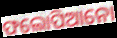
ଫଲୋପିଆନୋ